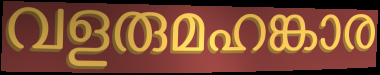
വളരുമഹങ്കാര